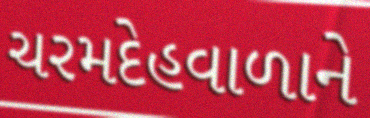
ચરમદેહવાળાને